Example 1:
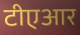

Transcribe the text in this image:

टीएआर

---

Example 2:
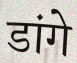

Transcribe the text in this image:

डांगे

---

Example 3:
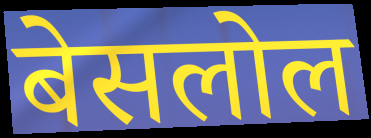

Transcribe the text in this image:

बेसलोल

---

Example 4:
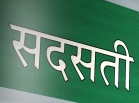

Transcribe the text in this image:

सदसती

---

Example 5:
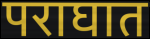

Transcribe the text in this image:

पराघात